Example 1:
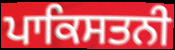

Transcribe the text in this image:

ਪਾਕਿਸਤਨੀ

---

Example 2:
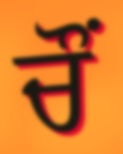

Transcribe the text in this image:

ਚੌਂ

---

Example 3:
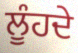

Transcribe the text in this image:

ਲੂੰਹਦੇ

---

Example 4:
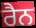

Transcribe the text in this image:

ਰੈਨ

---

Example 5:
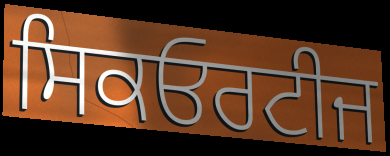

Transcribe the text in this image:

ਸਿਕਓਰਟੀਜ